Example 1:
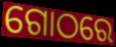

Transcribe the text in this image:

ଗୋଠରେ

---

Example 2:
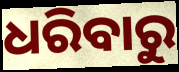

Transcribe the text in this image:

ଧରିବାରୁ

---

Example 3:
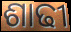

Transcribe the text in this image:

ଶାଢୀ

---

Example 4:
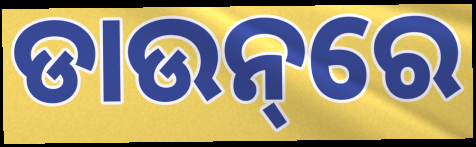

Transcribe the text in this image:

ଡାଉନ୍‌ରେ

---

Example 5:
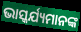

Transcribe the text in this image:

ଭାସ୍କର୍ଯ୍ୟମାନଙ୍କ